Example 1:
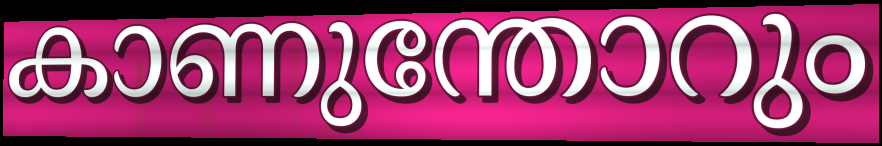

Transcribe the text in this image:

കാണുന്തോറും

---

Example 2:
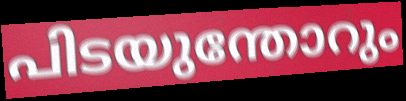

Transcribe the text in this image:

പിടയുന്തോറും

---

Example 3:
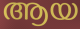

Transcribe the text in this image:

ആയ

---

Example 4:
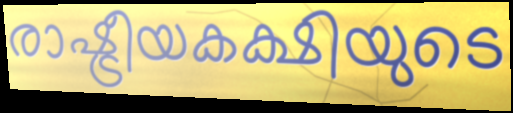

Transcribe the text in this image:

രാഷ്ട്രീയകക്ഷിയുടെ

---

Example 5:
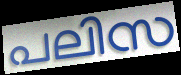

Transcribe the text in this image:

പലിസ